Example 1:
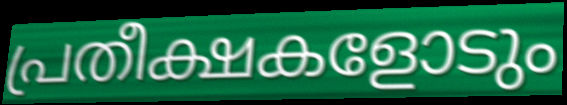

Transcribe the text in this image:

പ്രതീക്ഷകളോടും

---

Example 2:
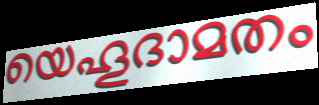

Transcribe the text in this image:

യെഹൂദാമതം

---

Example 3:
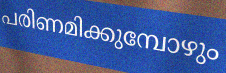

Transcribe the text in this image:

പരിണമിക്കുമ്പോഴും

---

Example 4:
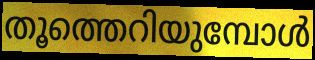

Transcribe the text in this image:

തൂത്തെറിയുമ്പോൾ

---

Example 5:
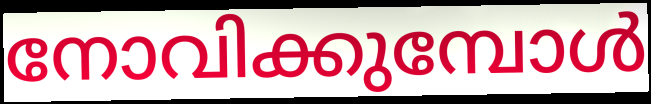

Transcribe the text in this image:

നോവിക്കുമ്പോൾ